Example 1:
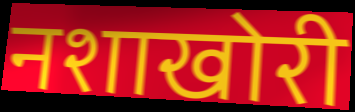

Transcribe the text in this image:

नशाखोरी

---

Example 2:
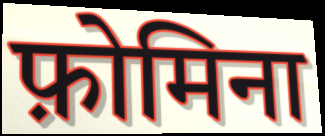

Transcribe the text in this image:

फ़ोमिना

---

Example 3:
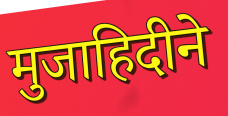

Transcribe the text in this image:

मुजाहिदीने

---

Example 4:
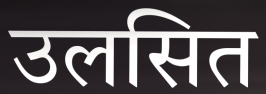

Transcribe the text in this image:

उलसित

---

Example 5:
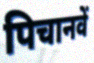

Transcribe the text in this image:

पिचानवें